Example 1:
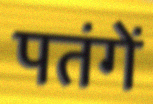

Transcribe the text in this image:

पतंगें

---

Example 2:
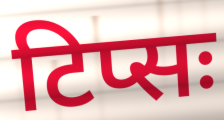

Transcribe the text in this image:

टिप्सः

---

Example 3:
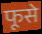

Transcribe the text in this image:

फूसे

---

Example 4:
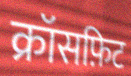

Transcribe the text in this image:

क्रॉसफ़िट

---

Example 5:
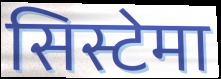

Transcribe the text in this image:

सिस्टेमा